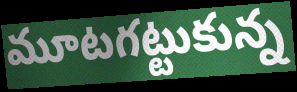
మూటగట్టుకున్న